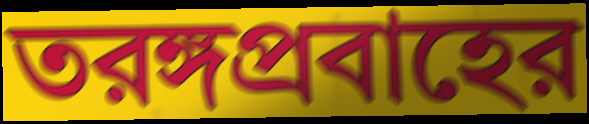
তরঙ্গপ্রবাহের